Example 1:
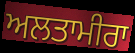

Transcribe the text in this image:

ਅਲਤਾਮੀਰਾ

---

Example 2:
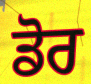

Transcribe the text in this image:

ਡੋਰ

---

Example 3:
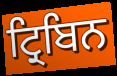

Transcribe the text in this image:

ਟ੍ਰਿਬਿਨ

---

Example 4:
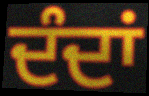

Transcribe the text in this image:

ਦੰਦਾਂ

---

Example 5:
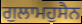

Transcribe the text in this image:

ਗੁਲਾਮਹੁਸੈਨ